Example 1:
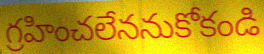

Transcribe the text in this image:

గ్రహించలేననుకోకండి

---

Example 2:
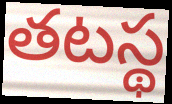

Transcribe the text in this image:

తటస్థ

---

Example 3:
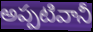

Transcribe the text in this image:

అప్పటివానీ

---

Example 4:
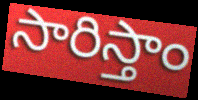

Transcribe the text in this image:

సారిస్తాం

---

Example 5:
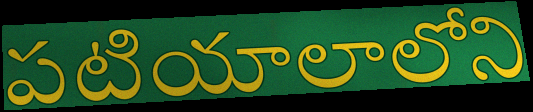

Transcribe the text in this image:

పటియాలాలోని